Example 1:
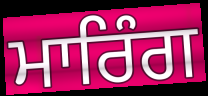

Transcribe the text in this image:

ਮਾਰਿੰਗ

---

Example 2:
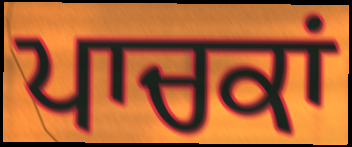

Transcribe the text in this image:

ਪਾਚਕਾਂ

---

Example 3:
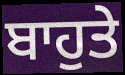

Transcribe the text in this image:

ਬਾਹੁਤੇ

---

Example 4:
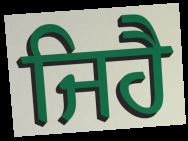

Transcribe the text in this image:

ਜਿਹੈ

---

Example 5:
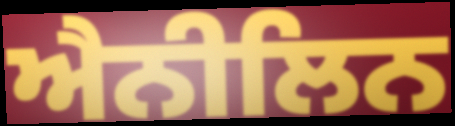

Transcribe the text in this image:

ਐਨੀਲਿਨ